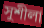
সুশীলা